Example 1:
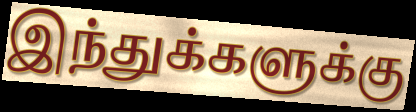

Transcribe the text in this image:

இந்துக்களுக்கு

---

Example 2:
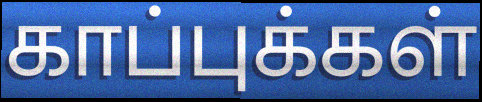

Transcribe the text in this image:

காப்புக்கள்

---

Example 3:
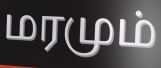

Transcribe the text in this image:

மரமும்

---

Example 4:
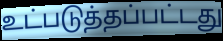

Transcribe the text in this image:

உட்படுத்தப்பட்டது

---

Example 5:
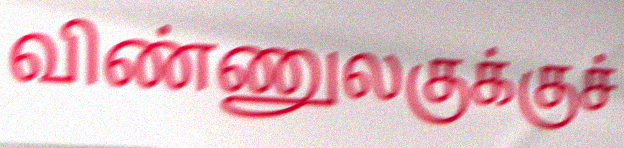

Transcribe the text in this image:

விண்ணுலகுக்குச்